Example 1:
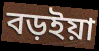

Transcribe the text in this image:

বড়ইয়া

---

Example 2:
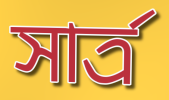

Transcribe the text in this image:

সার্ত্র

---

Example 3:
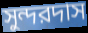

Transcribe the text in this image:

সুন্দরদাস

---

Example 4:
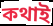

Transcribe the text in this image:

কথাই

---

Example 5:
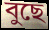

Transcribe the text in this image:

বুছে